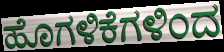
ಹೊಗಳಿಕೆಗಳಿಂದ